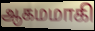
ஆகமமாகி